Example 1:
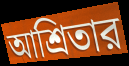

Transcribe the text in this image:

আশ্রিতার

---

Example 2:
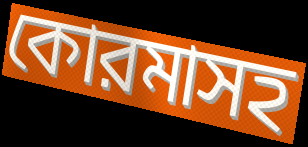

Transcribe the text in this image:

কোরমাসহ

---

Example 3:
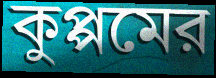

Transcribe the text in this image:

কুপ্পমের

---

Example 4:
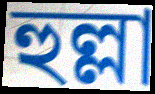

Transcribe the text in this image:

হুল্লা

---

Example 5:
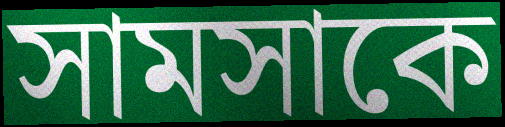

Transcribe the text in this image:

সামসাকে